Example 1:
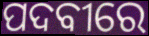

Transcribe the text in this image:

ପଦବୀରେ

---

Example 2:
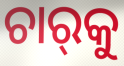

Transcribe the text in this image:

ଚାର୍‌କୁ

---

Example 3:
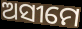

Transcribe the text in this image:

ଅସୀମେ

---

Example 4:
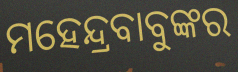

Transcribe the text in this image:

ମହେନ୍ଦ୍ରବାବୁଙ୍କର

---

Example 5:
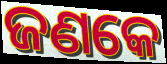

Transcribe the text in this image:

ଜଣକେ